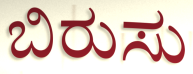
ಬಿರುಸು